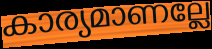
കാര്യമാണല്ലേ